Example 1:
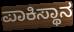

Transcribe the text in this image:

ಪಾಕಿಸ್ಥಾನ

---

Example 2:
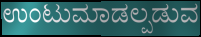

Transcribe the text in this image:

ಉಂಟುಮಾಡಲ್ಪಡುವ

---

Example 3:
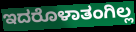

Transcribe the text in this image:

ಇದರೊಳಾತಂಗಿಲ್ಲ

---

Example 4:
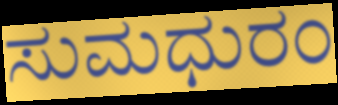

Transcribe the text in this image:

ಸುಮಧುರಂ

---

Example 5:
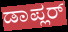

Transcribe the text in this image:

ಡಾಪ್ಲರ್